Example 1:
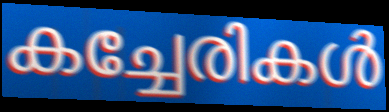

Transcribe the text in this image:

കച്ചേരികൾ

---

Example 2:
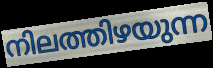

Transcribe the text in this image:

നിലത്തിഴയുന്ന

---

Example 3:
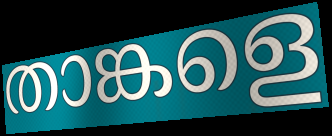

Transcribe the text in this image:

താങ്കളെ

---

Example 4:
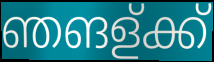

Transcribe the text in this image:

ഞങള്ക്ക്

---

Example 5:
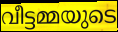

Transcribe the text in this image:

വീട്ടമ്മയുടെ